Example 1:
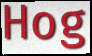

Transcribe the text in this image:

Hog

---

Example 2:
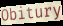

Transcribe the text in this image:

Obitury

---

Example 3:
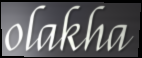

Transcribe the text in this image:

olakha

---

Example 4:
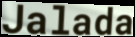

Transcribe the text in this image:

Jalada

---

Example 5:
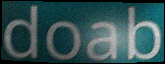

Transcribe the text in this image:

doab